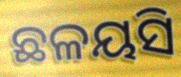
ଛଳୟସି